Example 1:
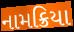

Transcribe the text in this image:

નામક્રિયા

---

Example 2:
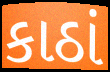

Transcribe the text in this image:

કાઠાં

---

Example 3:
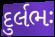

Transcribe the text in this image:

દુર્લભઃ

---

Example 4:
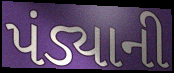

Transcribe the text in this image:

પંડ્યાની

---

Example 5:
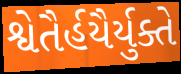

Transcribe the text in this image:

શ્વેતૈર્હયૈર્યુક્તે